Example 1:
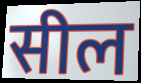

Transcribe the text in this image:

सील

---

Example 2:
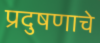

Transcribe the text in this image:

प्रदुषणाचे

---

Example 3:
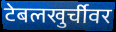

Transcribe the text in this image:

टेबलखुर्चीवर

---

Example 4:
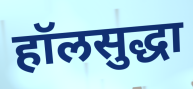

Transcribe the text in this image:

हॉलसुद्धा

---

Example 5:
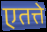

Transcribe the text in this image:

एतत्ते